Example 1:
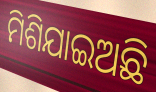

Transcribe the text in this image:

ମିଶିଯାଇଅଛି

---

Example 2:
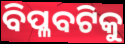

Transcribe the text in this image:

ବିପ୍ଳବଟିକୁ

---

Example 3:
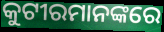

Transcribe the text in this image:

କୁଟୀରମାନଙ୍କରେ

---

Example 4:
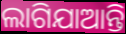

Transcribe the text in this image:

ଲାଗିଯାଆନ୍ତି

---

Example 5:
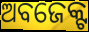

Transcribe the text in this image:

ଅବଜେକ୍ଟ